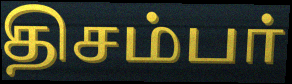
திசம்பர்